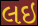
લઇ